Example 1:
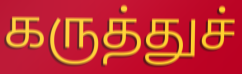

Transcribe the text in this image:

கருத்துச்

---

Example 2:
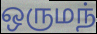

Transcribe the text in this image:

ஒருமந்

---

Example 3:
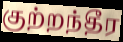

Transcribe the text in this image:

குற்றந்தீர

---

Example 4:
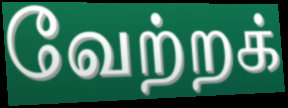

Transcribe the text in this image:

வேற்றக்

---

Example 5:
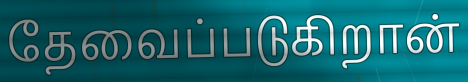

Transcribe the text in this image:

தேவைப்படுகிறான்